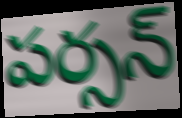
పర్సన్